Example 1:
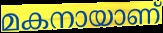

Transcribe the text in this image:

മകനായാണ്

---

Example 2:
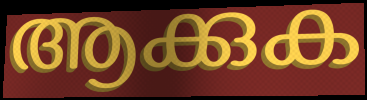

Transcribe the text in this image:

ആക്കുക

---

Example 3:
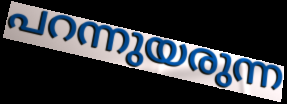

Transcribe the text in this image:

പറന്നുയരുന്ന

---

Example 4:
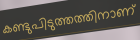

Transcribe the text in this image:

കണ്ടുപിടുത്തത്തിനാണ്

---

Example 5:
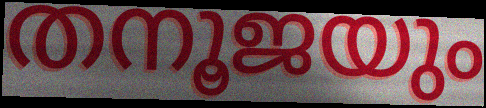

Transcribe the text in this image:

തനൂജയും